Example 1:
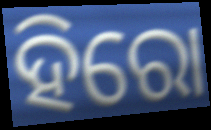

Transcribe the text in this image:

ହିରୋ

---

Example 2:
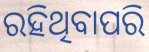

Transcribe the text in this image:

ରହିଥିବାପରି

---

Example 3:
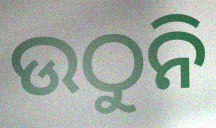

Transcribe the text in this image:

ଉଠୁନି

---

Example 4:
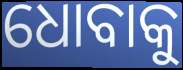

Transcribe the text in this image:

ଧୋବାକୁ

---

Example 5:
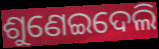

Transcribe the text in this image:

ଶୁଣେଇଦେଲି